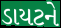
ડાયટને